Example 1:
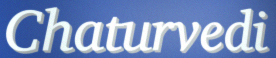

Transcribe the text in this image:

Chaturvedi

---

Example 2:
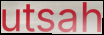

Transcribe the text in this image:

utsah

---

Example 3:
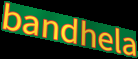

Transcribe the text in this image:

bandhela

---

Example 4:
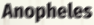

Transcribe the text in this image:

Anopheles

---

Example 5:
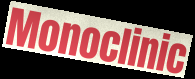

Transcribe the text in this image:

Monoclinic